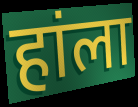
हांला